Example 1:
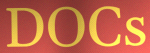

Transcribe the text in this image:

DOCs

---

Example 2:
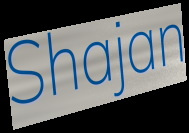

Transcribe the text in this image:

Shajan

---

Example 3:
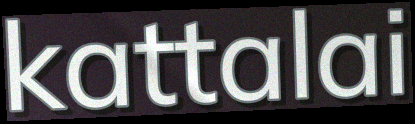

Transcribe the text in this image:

kattalai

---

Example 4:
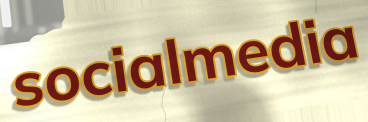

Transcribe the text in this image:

socialmedia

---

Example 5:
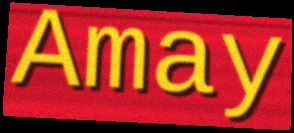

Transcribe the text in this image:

Amay